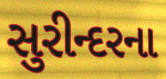
સુરીન્દરના